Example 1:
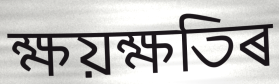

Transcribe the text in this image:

ক্ষয়ক্ষতিৰ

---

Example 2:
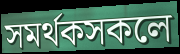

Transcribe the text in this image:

সমৰ্থকসকলে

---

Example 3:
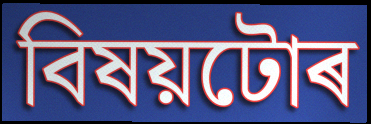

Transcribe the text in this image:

বিষয়টোৰ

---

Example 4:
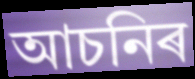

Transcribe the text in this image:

আচনিৰ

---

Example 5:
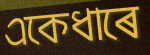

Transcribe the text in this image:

একেধাৰে